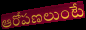
ఆరోపణలుంటే